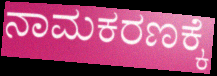
ನಾಮಕರಣಕ್ಕೆ